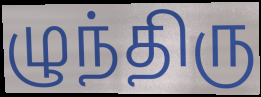
ழுந்திரு